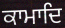
ਕਾਮਾਦਿ